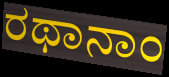
ರಥಾನಾಂ